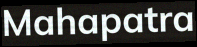
Mahapatra